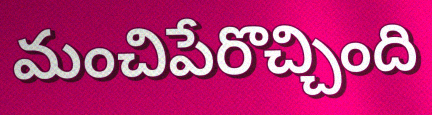
మంచిపేరొచ్చింది